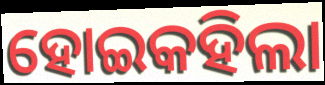
ହୋଇକହିଲା